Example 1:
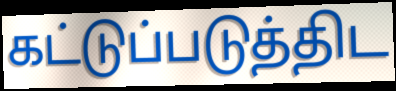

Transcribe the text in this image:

கட்டுப்படுத்திட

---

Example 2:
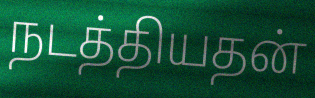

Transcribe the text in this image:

நடத்தியதன்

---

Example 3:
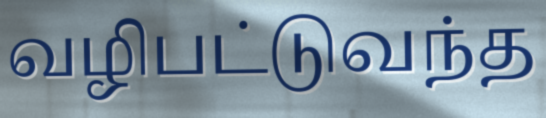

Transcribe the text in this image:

வழிபட்டுவந்த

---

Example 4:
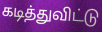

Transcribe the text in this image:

கடித்துவிட்டு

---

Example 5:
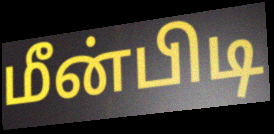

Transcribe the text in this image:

மீன்பிடி